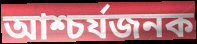
আশ্চৰ্যজনক